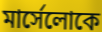
মার্সেলোকে